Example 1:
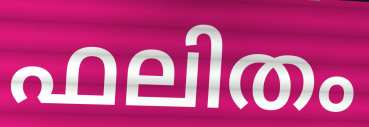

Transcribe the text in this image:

ഫലിതം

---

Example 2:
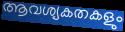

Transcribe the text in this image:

ആവശ്യകതകളും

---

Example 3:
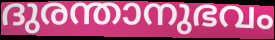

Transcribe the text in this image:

ദുരന്താനുഭവം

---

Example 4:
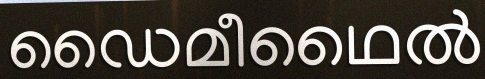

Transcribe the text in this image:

ഡൈമീഥൈൽ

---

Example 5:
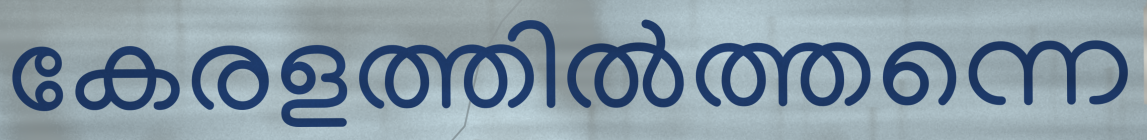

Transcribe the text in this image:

കേരളത്തിൽത്തന്നെ